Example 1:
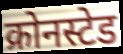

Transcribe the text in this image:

क्रोनस्टेड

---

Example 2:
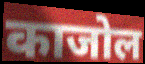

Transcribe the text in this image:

काजोल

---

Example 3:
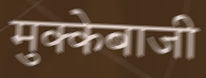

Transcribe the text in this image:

मुक्केबाजी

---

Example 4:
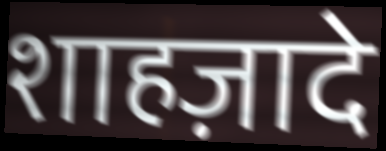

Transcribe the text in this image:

शाहज़ादे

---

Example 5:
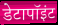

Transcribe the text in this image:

डेटापॉइंट